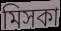
মিসকা